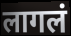
लागलं